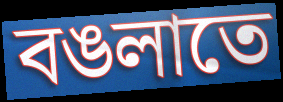
বঙলাতে